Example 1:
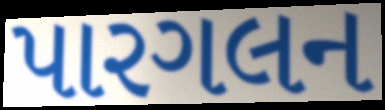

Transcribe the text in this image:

પારગલન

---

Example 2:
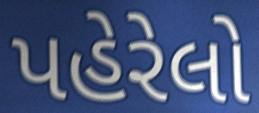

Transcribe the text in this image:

પહેરેલો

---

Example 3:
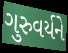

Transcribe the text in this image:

ગુરુવર્યને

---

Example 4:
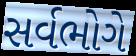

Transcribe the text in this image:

સર્વભોગે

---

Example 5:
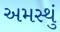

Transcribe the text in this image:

અમસ્થું